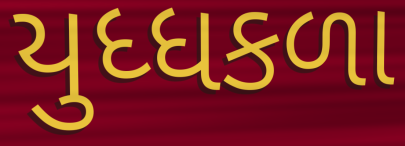
યુધ્ધકળા